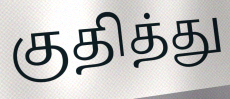
குதித்து